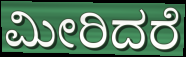
ಮೀರಿದರೆ